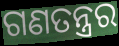
ଗଣତନ୍ତ୍ରର